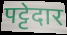
पट्टेदार